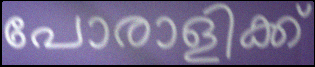
പോരാളിക്ക്